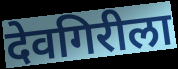
देवगिरीला